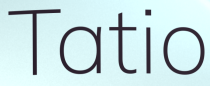
Tatio